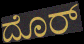
ದೊರ್